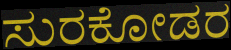
ಸುರಕೋಡರ